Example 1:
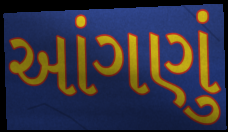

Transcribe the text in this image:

આંગણું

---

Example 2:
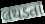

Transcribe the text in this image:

લથડતાં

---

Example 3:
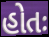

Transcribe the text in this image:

હોતઃ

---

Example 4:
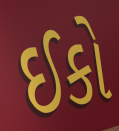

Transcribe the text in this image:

ઈકો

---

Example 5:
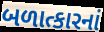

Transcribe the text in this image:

બળાત્કારનાં